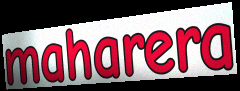
maharera